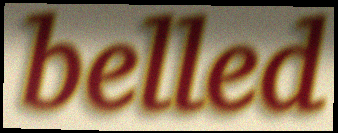
belled